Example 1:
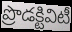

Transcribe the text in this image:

ప్రొడక్టివిటీ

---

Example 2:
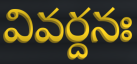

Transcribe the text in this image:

వివర్దనః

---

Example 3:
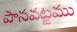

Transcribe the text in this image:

పానవట్టము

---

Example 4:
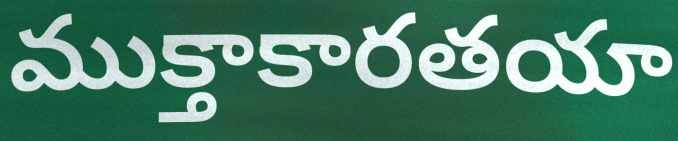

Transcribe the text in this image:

ముక్తాకారతయా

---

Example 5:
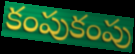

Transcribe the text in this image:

కంపుకంపు